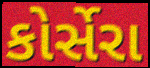
કોર્સેરા